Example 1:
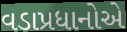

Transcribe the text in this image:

વડાપ્રધાનોએ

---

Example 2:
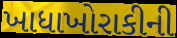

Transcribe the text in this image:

ખાધાખોરાકીની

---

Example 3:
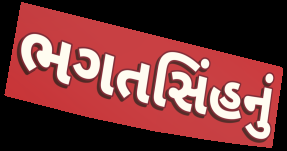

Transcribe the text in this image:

ભગતસિંહનું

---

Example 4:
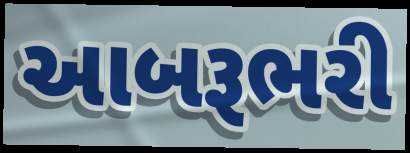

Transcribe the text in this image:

આબરૂભરી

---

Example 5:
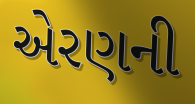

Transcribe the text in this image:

એરણની